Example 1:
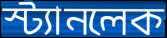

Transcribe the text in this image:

স্ট্যানলেক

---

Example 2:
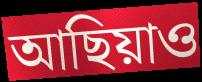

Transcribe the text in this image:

আছিয়াও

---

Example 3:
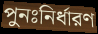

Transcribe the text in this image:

পুনঃনির্ধারণ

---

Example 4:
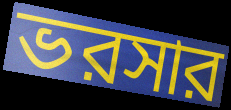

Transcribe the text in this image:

ভরসার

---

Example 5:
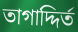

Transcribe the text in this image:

তাগাদ্দির্ত